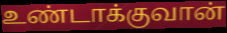
உண்டாக்குவான்